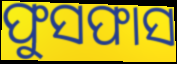
ଫୁସଫାସ